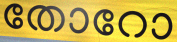
തോറോ